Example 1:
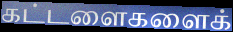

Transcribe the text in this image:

கட்டளைகளைக்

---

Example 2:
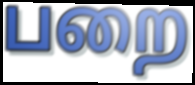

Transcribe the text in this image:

பறை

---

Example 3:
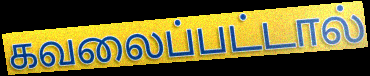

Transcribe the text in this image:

கவலைப்பட்டால்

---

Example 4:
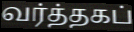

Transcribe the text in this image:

வர்த்தகப்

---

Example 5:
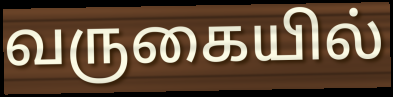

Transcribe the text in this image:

வருகையில்